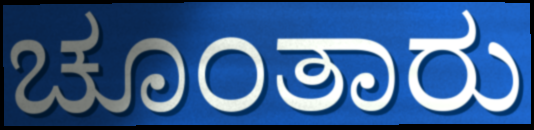
ಚೂಂತಾರು